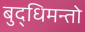
बुद्धिमन्तो